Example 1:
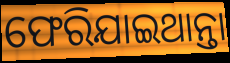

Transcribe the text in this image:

ଫେରିଯାଇଥାନ୍ତା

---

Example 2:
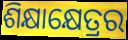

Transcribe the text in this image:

ଶିକ୍ଷାକ୍ଷେତ୍ରର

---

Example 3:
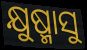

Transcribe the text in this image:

କ୍ଷୁଷ୍ମାସୁ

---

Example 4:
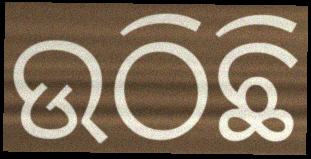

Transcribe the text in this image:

ଉଠିଛି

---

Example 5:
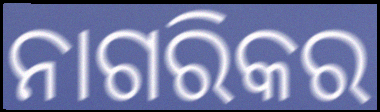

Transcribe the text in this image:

ନାଗରିକର